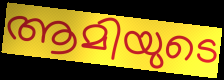
ആമിയുടെ